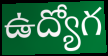
ఉద్యోగ